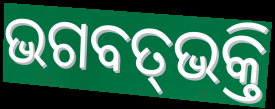
ଭଗବତ୍‌ଭକ୍ତି